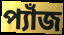
প্যাঁজ